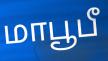
மாபூபீ